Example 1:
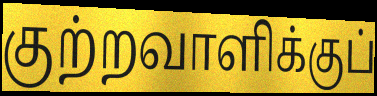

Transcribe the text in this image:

குற்றவாளிக்குப்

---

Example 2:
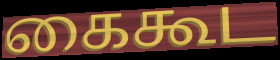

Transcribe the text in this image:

கைகூட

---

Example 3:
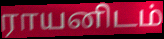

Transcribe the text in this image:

ராயனிடம்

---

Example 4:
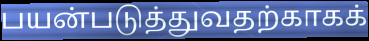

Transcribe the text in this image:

பயன்படுத்துவதற்காகக்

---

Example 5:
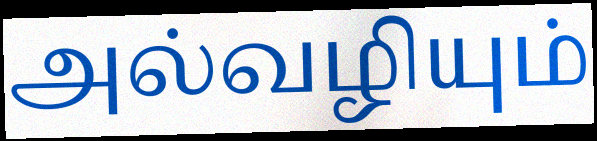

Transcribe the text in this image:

அல்வழியும்